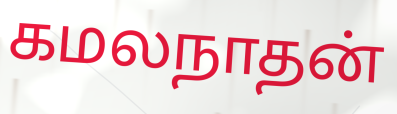
கமலநாதன்